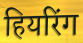
हियरिंग